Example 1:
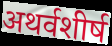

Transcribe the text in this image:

अथर्वशीर्ष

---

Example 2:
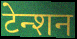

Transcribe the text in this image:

टेन्शन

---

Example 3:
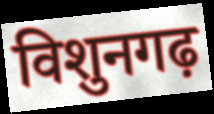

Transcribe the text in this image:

विशुनगढ़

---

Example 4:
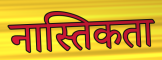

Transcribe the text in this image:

नास्तिकता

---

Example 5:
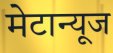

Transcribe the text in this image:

मेटान्यूज